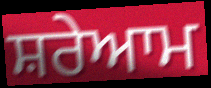
ਸ਼ਰੇਆਮ